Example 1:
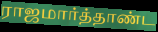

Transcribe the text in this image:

ராஜமார்த்தாண்ட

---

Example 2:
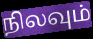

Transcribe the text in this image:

நிலவும்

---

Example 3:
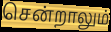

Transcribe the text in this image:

சென்றாலும்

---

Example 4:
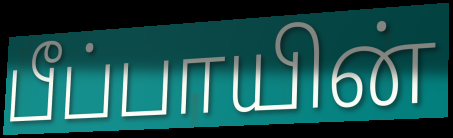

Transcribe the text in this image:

பீப்பாயின்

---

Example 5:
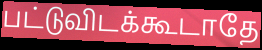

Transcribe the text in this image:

பட்டுவிடக்கூடாதே